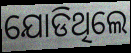
ଯୋଡିଥିଲେ